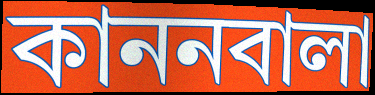
কাননবালা